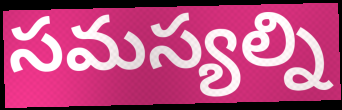
సమస్యల్ని